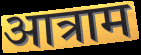
आत्राम